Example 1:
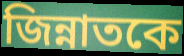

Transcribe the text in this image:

জিন্নাতকে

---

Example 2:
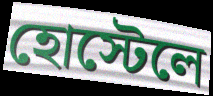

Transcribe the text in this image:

হোস্টেলে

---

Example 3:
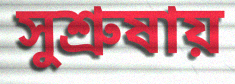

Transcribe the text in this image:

সুশ্রুষায়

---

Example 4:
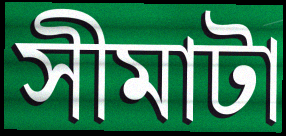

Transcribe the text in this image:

সীমাটা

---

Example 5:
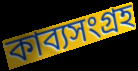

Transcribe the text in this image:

কাব্যসংগ্রহ